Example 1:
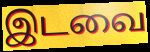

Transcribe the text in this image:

இடவை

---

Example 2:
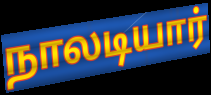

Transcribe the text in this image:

நாலடியார்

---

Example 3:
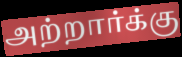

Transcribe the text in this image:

அற்றார்க்கு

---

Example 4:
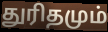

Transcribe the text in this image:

துரிதமும்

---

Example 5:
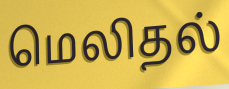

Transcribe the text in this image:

மெலிதல்